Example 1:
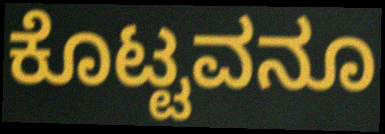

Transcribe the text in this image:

ಕೊಟ್ಟವನೂ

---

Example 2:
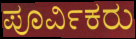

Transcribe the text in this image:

ಪೂರ್ವಿಕರು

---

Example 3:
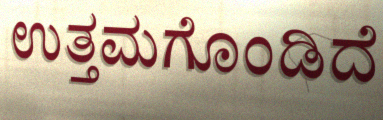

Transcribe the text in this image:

ಉತ್ತಮಗೊಂಡಿದೆ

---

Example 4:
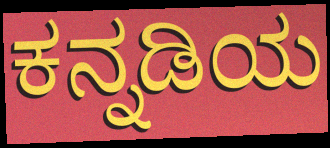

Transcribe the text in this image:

ಕನ್ನಡಿಯ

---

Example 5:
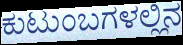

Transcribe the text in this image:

ಕುಟುಂಬಗಳಲ್ಲಿನ